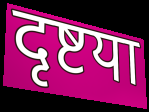
दृष्टया